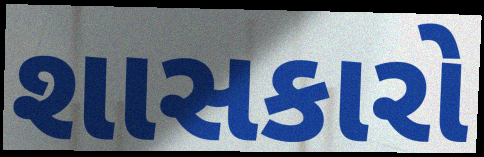
શાસકારો